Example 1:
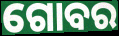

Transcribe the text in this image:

ଗୋବର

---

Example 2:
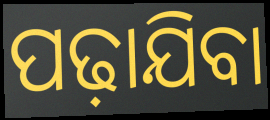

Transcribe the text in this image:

ପଢ଼ାଯିବା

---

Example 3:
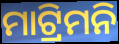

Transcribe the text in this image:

ମାଟ୍ରିମନି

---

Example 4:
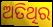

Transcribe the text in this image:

ଅତିଥିର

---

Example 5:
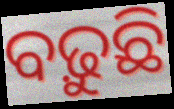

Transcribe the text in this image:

ବଢ଼ୁଛି